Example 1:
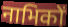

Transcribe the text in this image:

नाभिकों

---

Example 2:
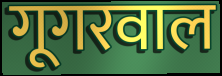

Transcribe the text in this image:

गूगरवाल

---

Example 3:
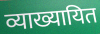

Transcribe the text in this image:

व्याख्यायित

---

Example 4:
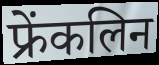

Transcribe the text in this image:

फ्रेंकलिन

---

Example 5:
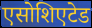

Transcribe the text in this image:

एसोशिएटेड